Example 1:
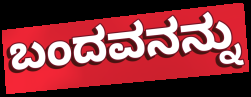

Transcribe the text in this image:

ಬಂದವನನ್ನು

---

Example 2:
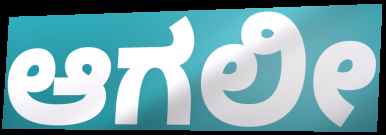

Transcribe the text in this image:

ಆಗಲೀ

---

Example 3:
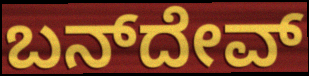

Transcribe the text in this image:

ಬನ್‌ದೇವ್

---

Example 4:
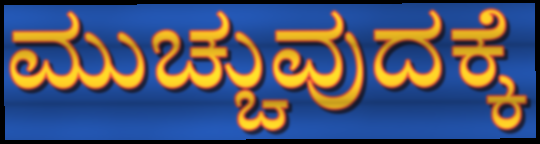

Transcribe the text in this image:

ಮುಚ್ಚುವುದಕ್ಕೆ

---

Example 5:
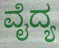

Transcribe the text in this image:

ವೈದ್ಯ